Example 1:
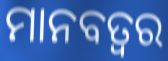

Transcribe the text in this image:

ମାନବତ୍ୱର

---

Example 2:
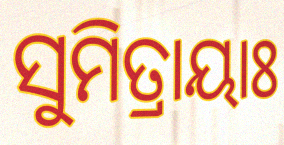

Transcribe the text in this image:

ସୁମିତ୍ରାୟାଃ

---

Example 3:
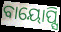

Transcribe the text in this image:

ବାୟୋପ୍ସି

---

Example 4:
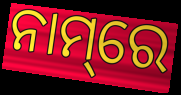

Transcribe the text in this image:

ନାମ୍‌ରେ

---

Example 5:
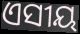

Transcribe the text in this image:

ଏସୀୟ